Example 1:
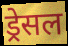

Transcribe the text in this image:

ड्रेसल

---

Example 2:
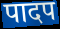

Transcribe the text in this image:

पादप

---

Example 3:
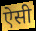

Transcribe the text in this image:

ऐसी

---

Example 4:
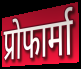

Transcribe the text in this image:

प्रोफार्मा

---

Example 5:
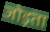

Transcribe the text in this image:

जोड़ता